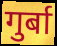
गुर्बा